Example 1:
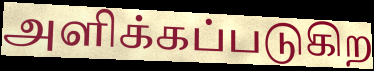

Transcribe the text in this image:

அளிக்கப்படுகிற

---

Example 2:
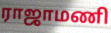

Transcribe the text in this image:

ராஜாமணி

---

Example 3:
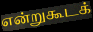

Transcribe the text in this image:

என்றுகூடக்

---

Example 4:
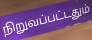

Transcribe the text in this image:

நிறுவப்பட்டதும்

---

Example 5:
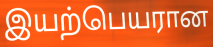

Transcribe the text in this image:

இயற்பெயரான